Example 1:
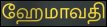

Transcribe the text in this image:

ஹேமாவதி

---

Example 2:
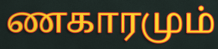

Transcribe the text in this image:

ணகாரமும்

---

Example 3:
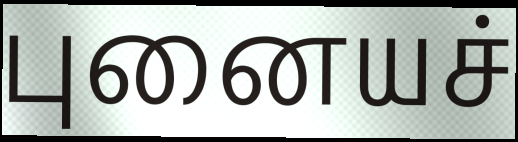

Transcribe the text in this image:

புனையச்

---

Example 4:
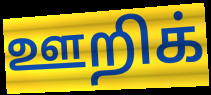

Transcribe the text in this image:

ஊறிக்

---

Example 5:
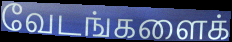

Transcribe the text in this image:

வேடங்களைக்